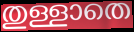
തുള്ളാതെ